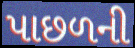
પાછળની